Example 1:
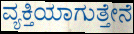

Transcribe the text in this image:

ವ್ಯಕ್ತಿಯಾಗುತ್ತೇನೆ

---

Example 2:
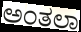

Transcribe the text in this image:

ಅಂತಲಾ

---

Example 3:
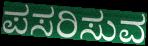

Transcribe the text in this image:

ಪಸರಿಸುವ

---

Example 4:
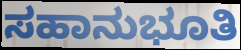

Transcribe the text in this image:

ಸಹಾನುಭೂತಿ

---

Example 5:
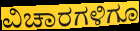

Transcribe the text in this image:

ವಿಚಾರಗಳಿಗೂ